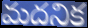
మదనిక